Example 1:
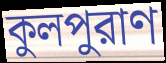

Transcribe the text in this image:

কুলপুরাণ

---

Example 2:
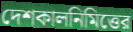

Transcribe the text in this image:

দেশকালনিমিত্তের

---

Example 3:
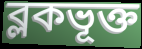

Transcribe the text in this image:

ব্লকভূক্ত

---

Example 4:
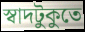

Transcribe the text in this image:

স্বাদটুকুতে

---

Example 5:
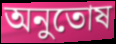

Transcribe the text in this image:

অনুতোষ